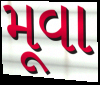
મૂવા